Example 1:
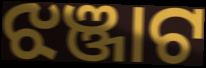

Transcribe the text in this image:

ଝଞ୍ଜାଟ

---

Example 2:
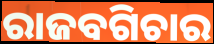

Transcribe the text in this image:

ରାଜବଗିଚାର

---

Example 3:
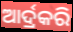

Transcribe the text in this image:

ଆର୍ଦ୍ରକରି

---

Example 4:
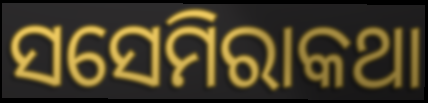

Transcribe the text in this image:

ସସେମିରାକଥା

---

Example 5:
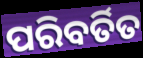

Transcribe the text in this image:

ପରିବର୍ତିତ